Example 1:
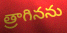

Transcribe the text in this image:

త్రాగినను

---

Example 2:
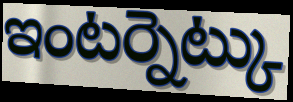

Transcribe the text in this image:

ఇంటర్నెట్కు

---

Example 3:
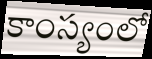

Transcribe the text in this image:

కాంస్యంలో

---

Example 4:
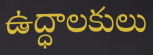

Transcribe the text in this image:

ఉద్ధాలకులు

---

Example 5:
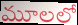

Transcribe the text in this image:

మూలలో